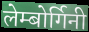
लेम्बोर्गिनी